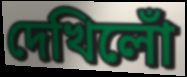
দেখিলোঁ